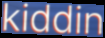
kiddin